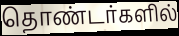
தொண்டர்களில்